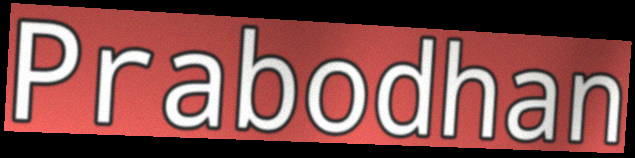
Prabodhan